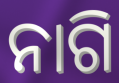
ନାଗି